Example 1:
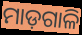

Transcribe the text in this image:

ମାଡ଼ଗାଳି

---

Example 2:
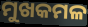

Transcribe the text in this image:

ମୁଖକମଳ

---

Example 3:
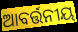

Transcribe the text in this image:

ଆବର୍ତ୍ତନୀୟ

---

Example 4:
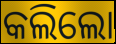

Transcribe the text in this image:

କଲିଲୋ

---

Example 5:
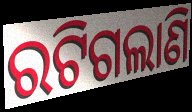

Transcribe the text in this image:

ରଟିଗଲାଣି